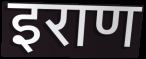
इराण